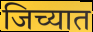
जिच्यात